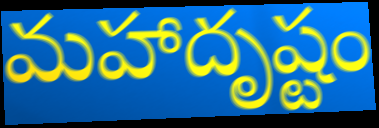
మహాదృష్టం